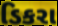
ડિકરા